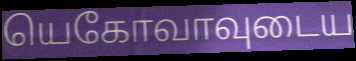
யெகோவாவுடைய